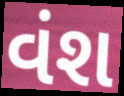
વંશ